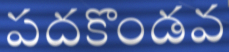
పదకొండవ